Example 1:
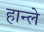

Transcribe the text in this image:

हान्ले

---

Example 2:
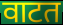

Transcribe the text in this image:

वाटत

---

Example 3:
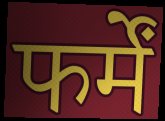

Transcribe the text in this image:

फर्में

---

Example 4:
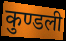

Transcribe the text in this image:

कुण्डली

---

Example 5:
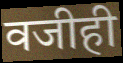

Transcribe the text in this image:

वजीही